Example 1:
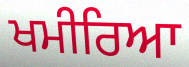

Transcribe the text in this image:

ਖਮੀਰਿਆ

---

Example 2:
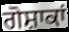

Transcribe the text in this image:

ਗੋਸ਼ਾਕਾਂ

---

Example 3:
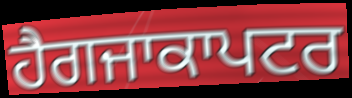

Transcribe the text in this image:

ਹੈਗਜਾਕਾਪਟਰ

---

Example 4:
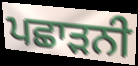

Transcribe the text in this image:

ਪਛਾੜਨੀ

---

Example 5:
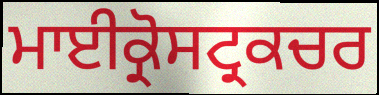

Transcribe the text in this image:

ਮਾਈਕ੍ਰੋਸਟ੍ਰਕਚਰ